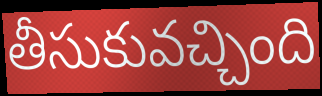
తీసుకువచ్చింది